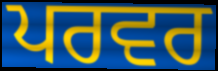
ਪਰਵਰ